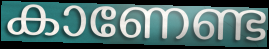
കാണേണ്ട